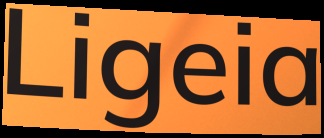
Ligeia